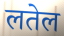
लतेल